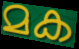
മക